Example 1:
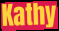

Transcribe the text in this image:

Kathy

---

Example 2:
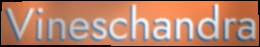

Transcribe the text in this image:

Vineschandra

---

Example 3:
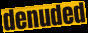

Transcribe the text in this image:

denuded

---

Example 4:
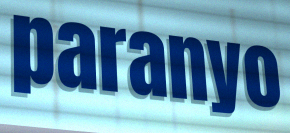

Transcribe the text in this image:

paranyo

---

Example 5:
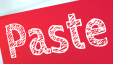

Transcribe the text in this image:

Paste